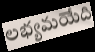
లభ్యమయేది